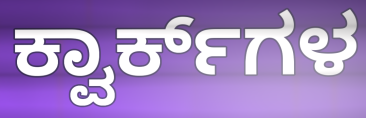
ಕ್ವಾರ್ಕ್‌ಗಳ